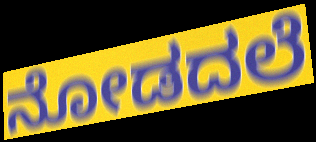
ನೋಡದಲೆ